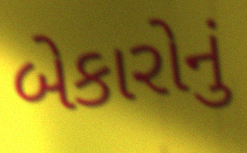
બેકારોનું